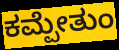
ಕಮ್ಪೇತುಂ